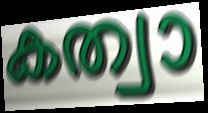
കത്വാ